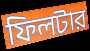
ফিলটার